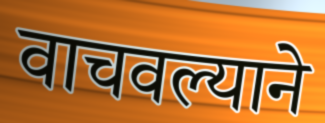
वाचवल्याने